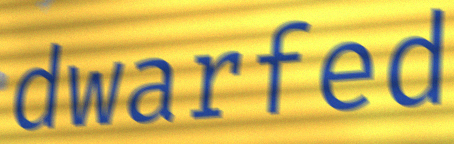
dwarfed